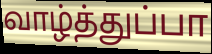
வாழ்த்துப்பா